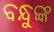
ବନ୍ଧୁଙ୍କ